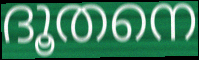
ദൂതനെ